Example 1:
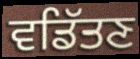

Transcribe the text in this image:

ਵਡਿੱਤਣ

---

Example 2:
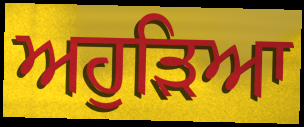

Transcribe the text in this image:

ਅਹੁੜਿਆ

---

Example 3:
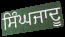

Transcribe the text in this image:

ਸਿੰਘਜਾਦੂ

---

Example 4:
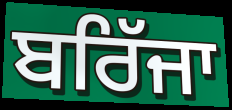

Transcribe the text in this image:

ਬਰਿੱਜਾ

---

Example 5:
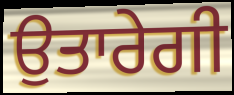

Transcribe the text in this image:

ਉਤਾਰੇਗੀ